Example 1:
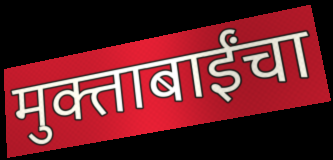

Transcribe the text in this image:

मुक्ताबाईंचा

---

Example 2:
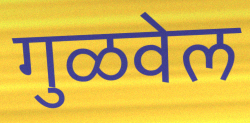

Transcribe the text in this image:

गुळवेल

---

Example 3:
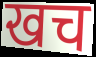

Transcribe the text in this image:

खच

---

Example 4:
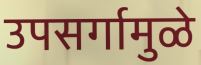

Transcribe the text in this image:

उपसर्गामुळे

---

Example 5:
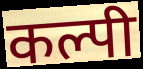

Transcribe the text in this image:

कल्पी